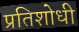
प्रतिशोधी